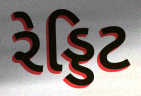
રેડ્ડિટ